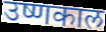
उष्णकाल